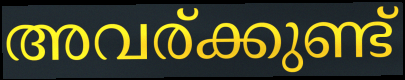
അവര്ക്കുണ്ട്